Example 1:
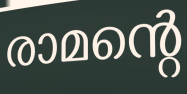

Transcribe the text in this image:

രാമന്റെ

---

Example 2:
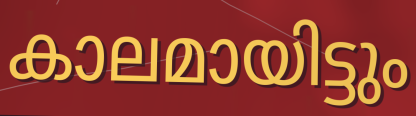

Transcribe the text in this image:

കാലമായിട്ടും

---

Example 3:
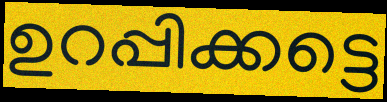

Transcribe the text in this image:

ഉറപ്പിക്കട്ടെ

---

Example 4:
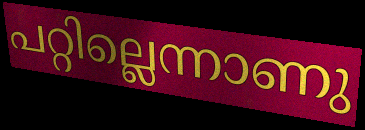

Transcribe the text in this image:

പറ്റില്ലെന്നാണു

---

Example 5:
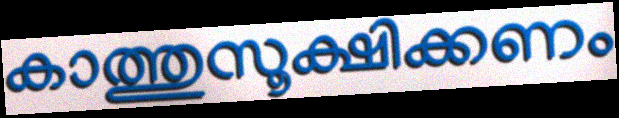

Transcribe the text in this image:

കാത്തുസൂക്ഷിക്കണം